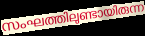
സംഘത്തിലുണ്ടായിരുന്ന